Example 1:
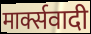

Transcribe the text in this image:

मार्क्सवादी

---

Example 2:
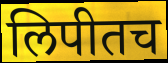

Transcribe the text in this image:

लिपीतच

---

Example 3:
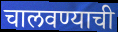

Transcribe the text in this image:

चालवण्याची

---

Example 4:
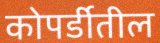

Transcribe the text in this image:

कोपर्डीतील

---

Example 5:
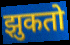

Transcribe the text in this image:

झुकतो